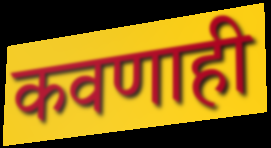
कवणाही